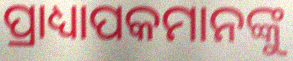
ପ୍ରାଧ୍ୟାପକମାନଙ୍କୁ